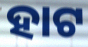
ହାଟ